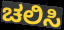
ಚಲಿಸಿ